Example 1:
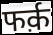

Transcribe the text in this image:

फर्क़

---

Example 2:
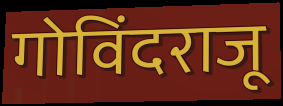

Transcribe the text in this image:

गोविंदराजू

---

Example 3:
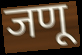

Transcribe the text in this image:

जणू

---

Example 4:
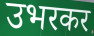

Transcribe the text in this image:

उभरकर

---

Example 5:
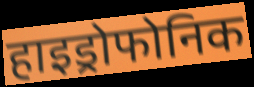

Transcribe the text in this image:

हाइड्रोफोनिक